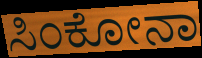
ಸಿಂಕೋನಾ